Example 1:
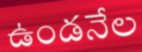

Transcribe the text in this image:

ఉండనేల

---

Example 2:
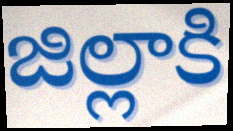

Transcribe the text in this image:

జిల్లాకి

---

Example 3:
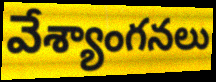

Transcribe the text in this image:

వేశ్యాంగనలు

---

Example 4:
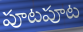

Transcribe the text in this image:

పూటపూట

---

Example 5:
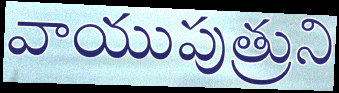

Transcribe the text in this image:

వాయుపుత్రుని